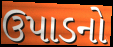
ઉપાડનો